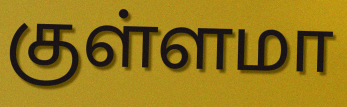
குள்ளமா